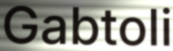
Gabtoli